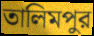
তালিমপুর